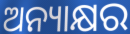
ଅନ୍ୟାକ୍ଷର